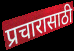
प्रचारासाठी